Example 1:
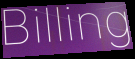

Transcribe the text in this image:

Billing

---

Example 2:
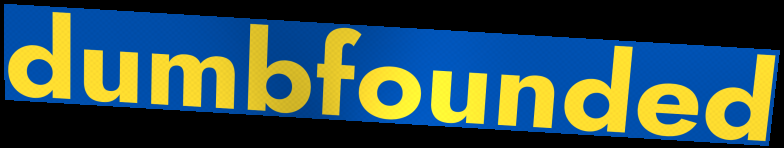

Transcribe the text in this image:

dumbfounded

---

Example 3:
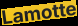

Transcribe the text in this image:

Lamotte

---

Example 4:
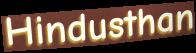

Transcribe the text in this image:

Hindusthan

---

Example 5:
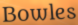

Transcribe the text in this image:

Bowles